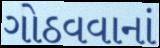
ગોઠવવાનાં